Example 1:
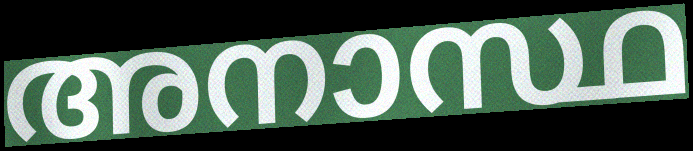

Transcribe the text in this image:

അനാസ്ഥ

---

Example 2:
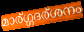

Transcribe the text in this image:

മാര്ഗ്ഗദര്ശനം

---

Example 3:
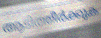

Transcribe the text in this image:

ആടിത്തീർക്കുക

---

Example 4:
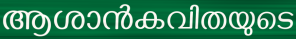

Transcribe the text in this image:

ആശാൻകവിതയുടെ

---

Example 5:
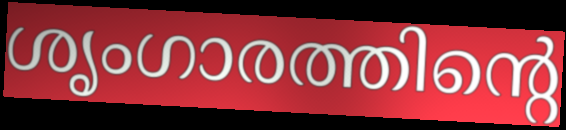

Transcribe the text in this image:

ശൃംഗാരത്തിന്റെ